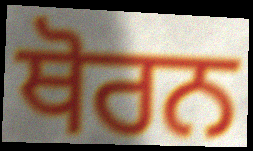
ਥੋਰਨ